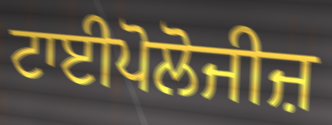
ਟਾਈਪੋਲੋਜੀਜ਼